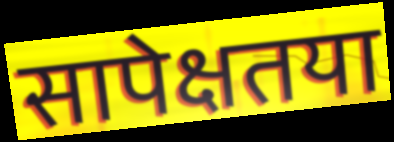
सापेक्षतया